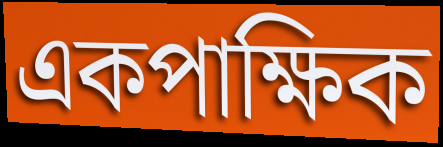
একপাক্ষিক